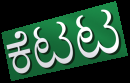
ಕೆಟಟ